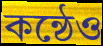
কন্ঠেও